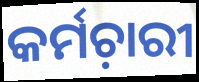
କର୍ମଚ଼ାରୀ